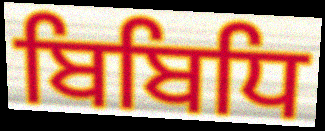
ਬਿਬਿਧਿ